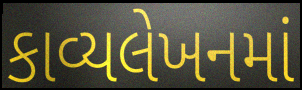
કાવ્યલેખનમાં